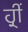
ਹ੍ਰੀਂ